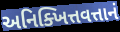
અનિક્ખિત્તવત્તાનં